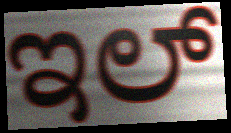
ಇಲ್